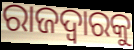
ରାଜଦ୍ୱାରକୁ